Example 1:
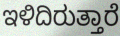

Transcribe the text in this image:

ಇಳಿದಿರುತ್ತಾರೆ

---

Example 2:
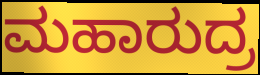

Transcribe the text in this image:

ಮಹಾರುದ್ರ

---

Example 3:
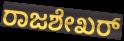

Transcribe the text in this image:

ರಾಜಶೇಖರ್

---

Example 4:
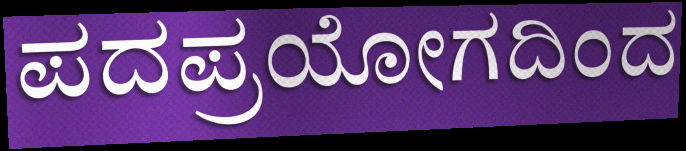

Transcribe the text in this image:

ಪದಪ್ರಯೋಗದಿಂದ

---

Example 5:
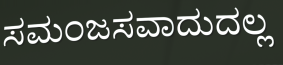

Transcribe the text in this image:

ಸಮಂಜಸವಾದುದಲ್ಲ